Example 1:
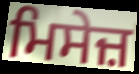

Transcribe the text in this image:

ਮਿਸੇਜ਼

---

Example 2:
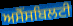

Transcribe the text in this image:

ਅਸੈੱਸਬਿਲਟੀ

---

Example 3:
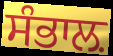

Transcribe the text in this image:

ਸੰਭਾਲ਼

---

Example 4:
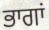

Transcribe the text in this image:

ਭਾਗਾਂ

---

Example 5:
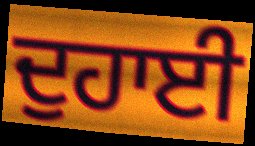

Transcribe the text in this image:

ਦੁਹਾਈ